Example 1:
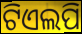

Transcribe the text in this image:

ଟିଏଲପି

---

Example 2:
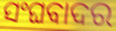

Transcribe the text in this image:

ସଂଘବାଦର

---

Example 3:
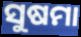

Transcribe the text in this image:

ସୁଷମା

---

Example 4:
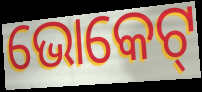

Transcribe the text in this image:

ଭୋକେଟ୍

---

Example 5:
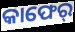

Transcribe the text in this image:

କାଫେର୍